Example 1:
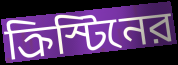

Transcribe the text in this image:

ক্রিস্টিনের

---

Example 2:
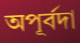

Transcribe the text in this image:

অপূর্বদা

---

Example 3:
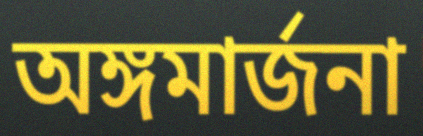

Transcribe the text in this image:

অঙ্গমার্জনা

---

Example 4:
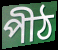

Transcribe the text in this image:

পীঠ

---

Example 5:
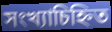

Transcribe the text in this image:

সংখ্যাচিহ্নিত